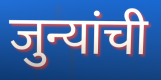
जुन्यांची